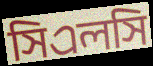
সিএলসি